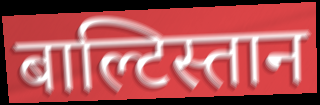
बाल्टिस्तान